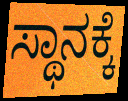
ಸ್ಥಾನಕ್ಕೆ